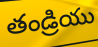
తండ్రియు